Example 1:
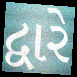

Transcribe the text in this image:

દ્વારે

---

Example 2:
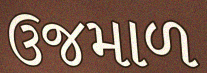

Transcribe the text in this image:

ઉજમાળ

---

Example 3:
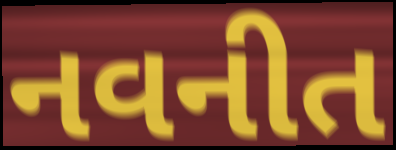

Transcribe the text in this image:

નવનીત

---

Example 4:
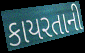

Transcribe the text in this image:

કાયરતાની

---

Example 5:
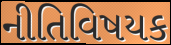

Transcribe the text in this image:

નીતિવિષયક